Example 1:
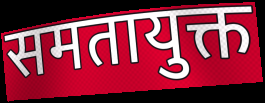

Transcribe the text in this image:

समतायुक्त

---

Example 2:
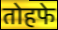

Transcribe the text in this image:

तोहफे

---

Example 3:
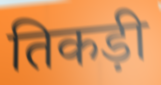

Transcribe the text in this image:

तिकड़ी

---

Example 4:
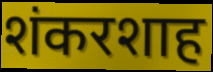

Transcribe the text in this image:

शंकरशाह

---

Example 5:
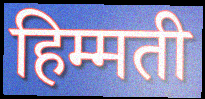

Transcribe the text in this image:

हिम्मती